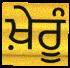
ਖ਼ੇਰੂੰ